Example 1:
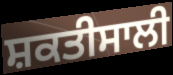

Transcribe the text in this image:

ਸ਼ਕਤੀਸਾਲੀ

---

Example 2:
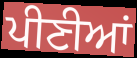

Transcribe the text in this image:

ਪੀਣੀਆਂ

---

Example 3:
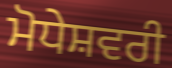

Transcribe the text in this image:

ਮੋਧੇਸ਼ਵਰੀ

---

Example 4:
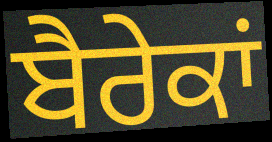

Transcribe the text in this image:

ਬੈਰੇਕਾਂ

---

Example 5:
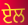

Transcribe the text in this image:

ਏਲ